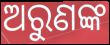
ଅରୁଣଙ୍କ